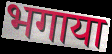
भगाया